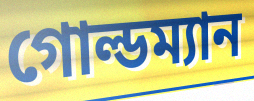
গোল্ডম্যান